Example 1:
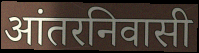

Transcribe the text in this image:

आंतरनिवासी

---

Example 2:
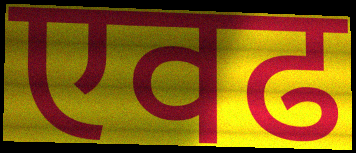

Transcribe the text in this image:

एवढ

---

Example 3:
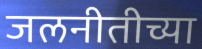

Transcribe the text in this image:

जलनीतीच्या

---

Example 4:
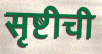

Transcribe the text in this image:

सृष्टीची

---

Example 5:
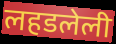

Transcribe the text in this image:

लहडलेली